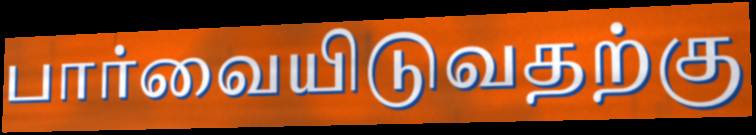
பார்வையிடுவதற்கு